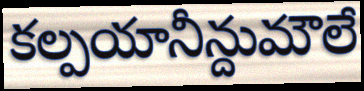
కల్పయానీన్దుమౌలే